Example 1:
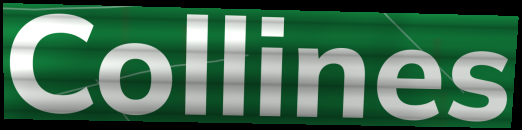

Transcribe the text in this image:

Collines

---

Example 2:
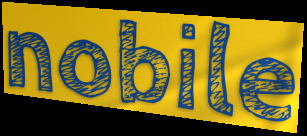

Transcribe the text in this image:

nobile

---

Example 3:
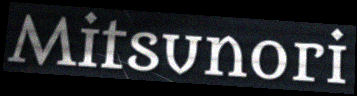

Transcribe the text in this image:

Mitsunori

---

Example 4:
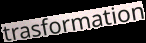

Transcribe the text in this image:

trasformation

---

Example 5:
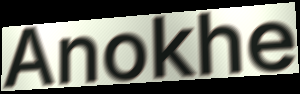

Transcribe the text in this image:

Anokhe